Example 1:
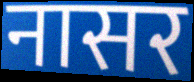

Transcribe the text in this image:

नासर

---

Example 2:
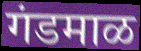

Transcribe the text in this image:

गंडमाळ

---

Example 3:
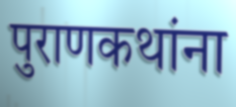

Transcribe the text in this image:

पुराणकथांना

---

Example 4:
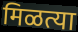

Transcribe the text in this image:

मिळत्या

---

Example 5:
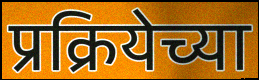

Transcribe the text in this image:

प्रक्रियेच्या